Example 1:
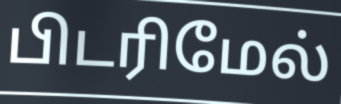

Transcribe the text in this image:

பிடரிமேல்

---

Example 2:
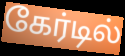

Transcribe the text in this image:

கேர்டில்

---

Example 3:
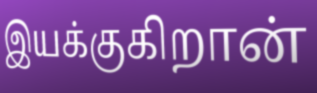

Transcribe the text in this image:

இயக்குகிறான்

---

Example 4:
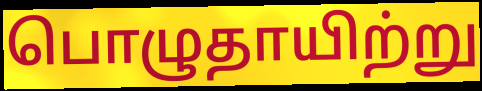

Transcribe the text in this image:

பொழுதாயிற்று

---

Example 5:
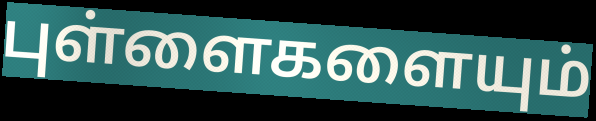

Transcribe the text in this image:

புள்ளைகளையும்